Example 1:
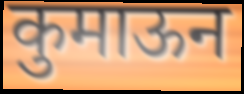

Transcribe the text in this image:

कुमाऊन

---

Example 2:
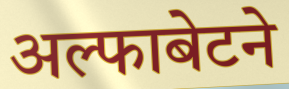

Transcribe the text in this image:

अल्फाबेटने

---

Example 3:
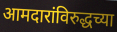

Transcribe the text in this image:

आमदारांविरुद्धच्या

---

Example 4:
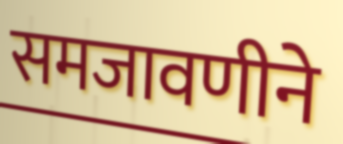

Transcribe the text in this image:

समजावणीने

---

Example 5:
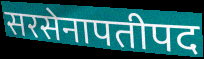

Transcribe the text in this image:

सरसेनापतीपद